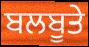
ਬਲਬੂਤੇ